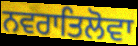
ਨਵਰਾਤਿਲੋਵਾ